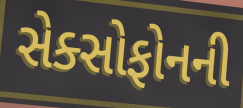
સેક્સોફોનની